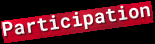
Participation